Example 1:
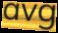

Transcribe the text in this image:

avg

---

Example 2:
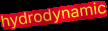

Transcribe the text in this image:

hydrodynamic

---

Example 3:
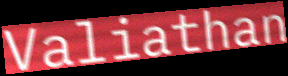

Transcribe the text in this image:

Valiathan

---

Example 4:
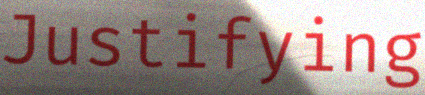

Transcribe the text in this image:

Justifying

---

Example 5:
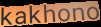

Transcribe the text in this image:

kakhono